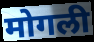
मोगली